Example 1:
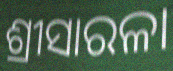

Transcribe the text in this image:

ଶ୍ରୀସାରଳା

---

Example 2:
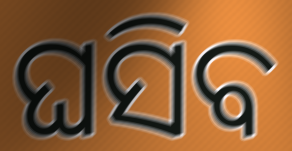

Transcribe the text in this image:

ଘସିବ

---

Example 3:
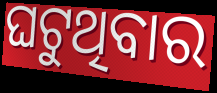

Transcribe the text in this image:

ଘଟୁଥିବାର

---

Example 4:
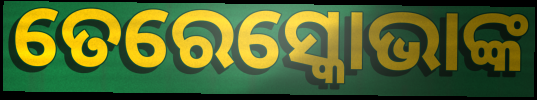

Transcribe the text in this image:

ତେରେସ୍କୋଭାଙ୍କ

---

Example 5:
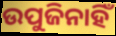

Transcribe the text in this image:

ଉପୁଜିନାହିଁ